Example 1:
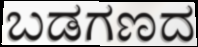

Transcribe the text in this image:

ಬಡಗಣದ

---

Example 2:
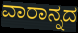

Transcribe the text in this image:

ವಾರಾನ್ನದ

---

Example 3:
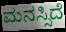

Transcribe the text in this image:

ಮನಸ್ಸಿದೆ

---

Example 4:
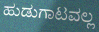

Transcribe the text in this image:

ಹುಡುಗಾಟವಲ್ಲ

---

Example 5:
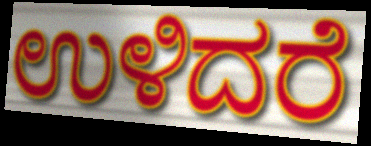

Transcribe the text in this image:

ಉಳಿದರೆ